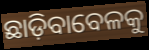
ଛାଡ଼ିବାବେଳକୁ